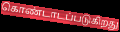
கொண்டாடப்படுகிறது